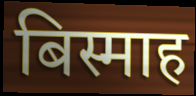
बिस्माह